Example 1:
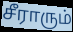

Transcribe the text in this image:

சீராரும்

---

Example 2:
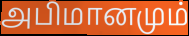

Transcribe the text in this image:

அபிமானமும்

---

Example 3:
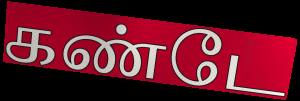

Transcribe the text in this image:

கண்டே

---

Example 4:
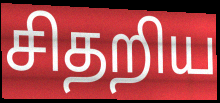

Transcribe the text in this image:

சிதறிய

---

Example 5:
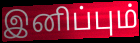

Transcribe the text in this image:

இனிப்பும்